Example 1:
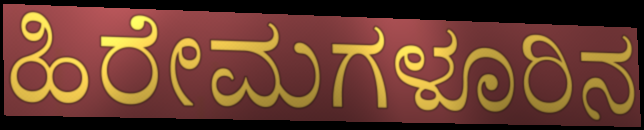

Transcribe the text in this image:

ಹಿರೇಮಗಳೂರಿನ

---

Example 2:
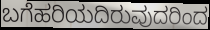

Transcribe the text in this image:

ಬಗೆಹರಿಯದಿರುವುದರಿಂದ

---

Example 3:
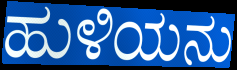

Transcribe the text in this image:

ಹುಳಿಯನು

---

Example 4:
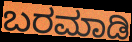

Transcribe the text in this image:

ಬರಮಾಡಿ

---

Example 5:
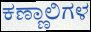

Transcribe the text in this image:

ಕಣ್ಣಾಲಿಗಳ